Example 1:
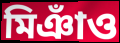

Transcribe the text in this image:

মিঞাঁও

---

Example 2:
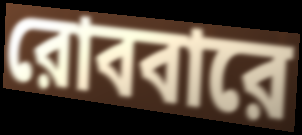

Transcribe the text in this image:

রোববারে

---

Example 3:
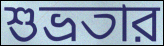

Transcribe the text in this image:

শুভ্রতার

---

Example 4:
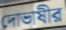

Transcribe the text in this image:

দোভাষীর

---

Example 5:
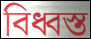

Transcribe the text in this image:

বিধ্বস্ত